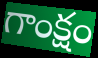
గాంక్షం